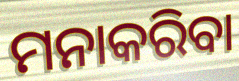
ମନାକରିବା